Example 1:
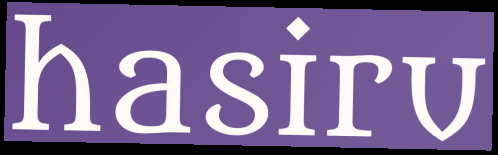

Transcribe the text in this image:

hasiru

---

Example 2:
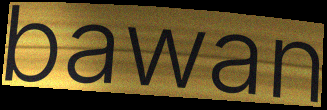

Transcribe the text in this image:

bawan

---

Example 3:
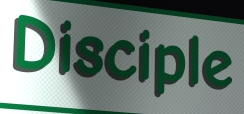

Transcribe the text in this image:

Disciple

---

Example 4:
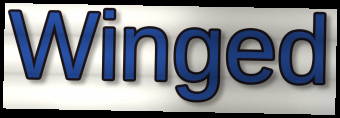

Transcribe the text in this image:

Winged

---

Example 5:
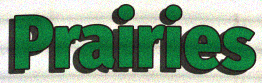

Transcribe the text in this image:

Prairies